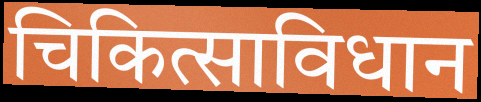
चिकित्साविधान